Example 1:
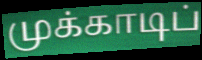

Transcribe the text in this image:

முக்காடிப்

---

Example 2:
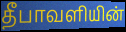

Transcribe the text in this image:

தீபாவளியின்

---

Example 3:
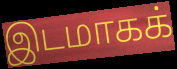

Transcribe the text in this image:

இடமாகக்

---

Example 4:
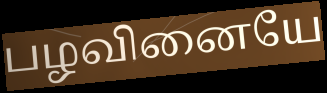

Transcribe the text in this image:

பழவினையே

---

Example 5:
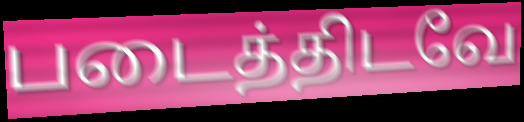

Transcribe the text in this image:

படைத்திடவே